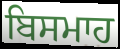
ਬਿਸਮਾਹ